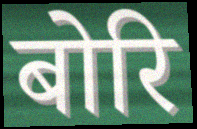
बोरि